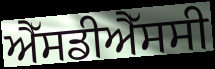
ਐੱਸਡੀਐੱਸਸੀ